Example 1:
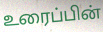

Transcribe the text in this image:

உரைப்பின்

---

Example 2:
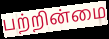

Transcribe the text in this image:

பற்றின்மை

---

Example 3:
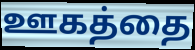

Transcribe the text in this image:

ஊகத்தை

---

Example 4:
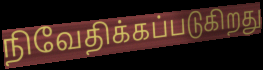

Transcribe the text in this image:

நிவேதிக்கப்படுகிறது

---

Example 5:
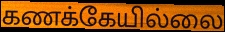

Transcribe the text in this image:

கணக்கேயில்லை